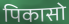
पिकासो